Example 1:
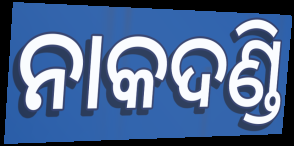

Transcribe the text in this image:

ନାକଦଣ୍ଡି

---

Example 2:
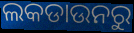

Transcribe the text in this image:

ଲକଡାଉନରୁ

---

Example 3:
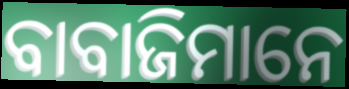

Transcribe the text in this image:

ବାବାଜିମାନେ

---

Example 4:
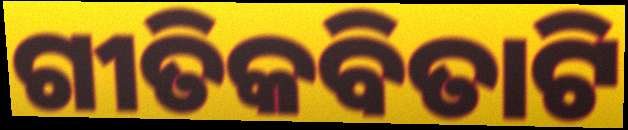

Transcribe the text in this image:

ଗୀତିକବିତାଟି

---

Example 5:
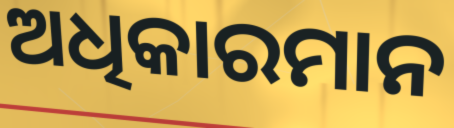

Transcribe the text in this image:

ଅଧିକାରମାନ